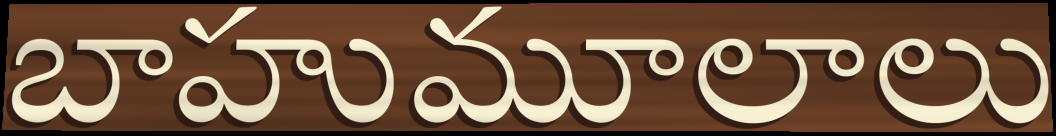
బాహుమూలాలు